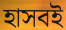
হাসবই